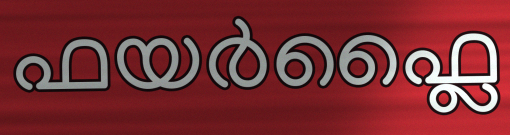
ഫയർഫ്ലൈ